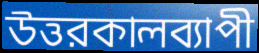
উত্তরকালব্যাপী